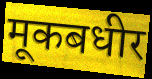
मूकबधीर